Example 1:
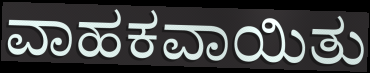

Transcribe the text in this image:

ವಾಹಕವಾಯಿತು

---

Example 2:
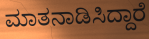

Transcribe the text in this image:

ಮಾತನಾಡಿಸಿದ್ದಾರೆ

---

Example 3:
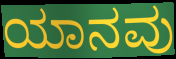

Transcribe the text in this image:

ಯಾನವು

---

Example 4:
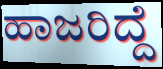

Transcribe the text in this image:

ಹಾಜರಿದ್ದೆ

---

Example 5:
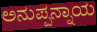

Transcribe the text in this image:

ಅನುಪ್ಪನ್ನಾಯ